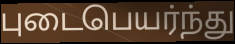
புடைபெயர்ந்து